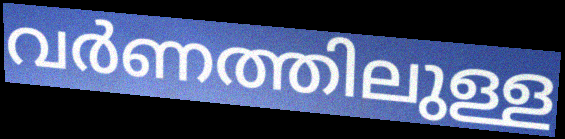
വർണത്തിലുള്ള